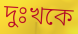
দুঃখকে